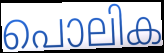
പൊലിക